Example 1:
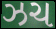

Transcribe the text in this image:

ઝચ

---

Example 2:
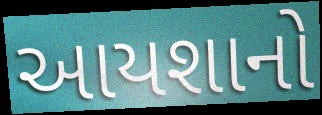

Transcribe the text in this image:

આયશાનો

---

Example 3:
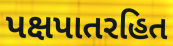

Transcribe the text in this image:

પક્ષપાતરહિત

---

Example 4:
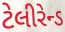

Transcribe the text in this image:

ટેલીરેન્ડ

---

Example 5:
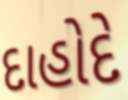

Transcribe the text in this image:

દાહોદે